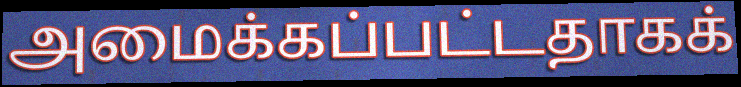
அமைக்கப்பட்டதாகக்